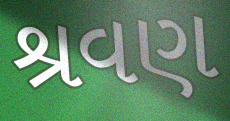
શ્રવણ